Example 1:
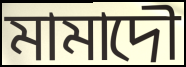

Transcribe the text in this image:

মামাদৌ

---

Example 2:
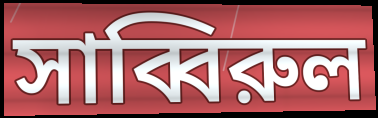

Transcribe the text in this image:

সাব্বিরুল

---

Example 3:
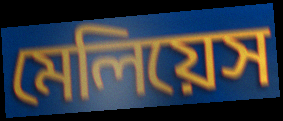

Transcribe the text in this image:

মেলিয়েস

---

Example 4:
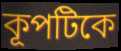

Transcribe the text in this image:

কূপটিকে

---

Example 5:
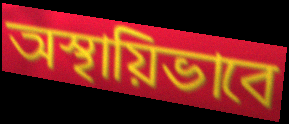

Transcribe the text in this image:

অস্থায়িভাবে